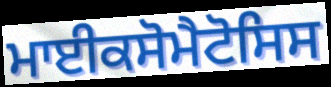
ਮਾਈਕਸੋਮੈਟੋਸਿਸ